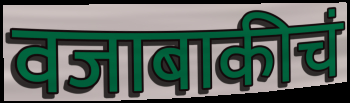
वजाबाकीचं